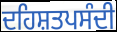
ਦਹਿਸ਼ਤਪਸੰਦੀ